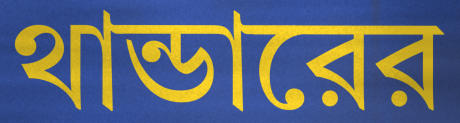
থান্ডারের